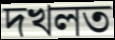
দখলত